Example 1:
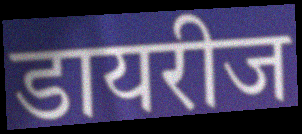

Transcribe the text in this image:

डायरीज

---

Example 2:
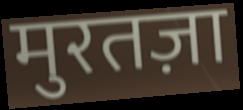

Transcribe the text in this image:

मुरतज़ा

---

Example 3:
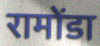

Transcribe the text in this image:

रामोंडा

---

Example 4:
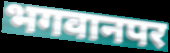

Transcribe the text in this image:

भगवानपर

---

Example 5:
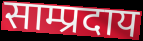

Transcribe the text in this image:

साम्प्रदाय